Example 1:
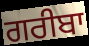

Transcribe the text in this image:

ਗਰੀਬਾ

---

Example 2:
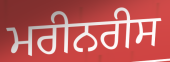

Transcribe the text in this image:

ਮਰੀਨਰੀਸ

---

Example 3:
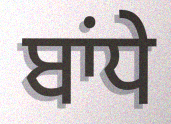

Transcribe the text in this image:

ਬਾਂਧੇ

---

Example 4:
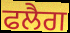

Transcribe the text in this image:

ਫਲੈਗ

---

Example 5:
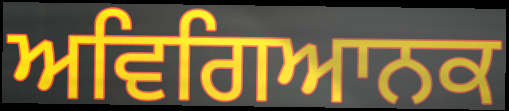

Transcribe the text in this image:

ਅਵਿਗਿਆਨਕ